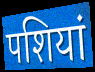
पशियां